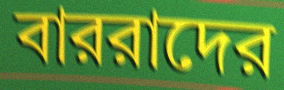
বাররাদের